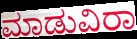
ಮಾಡುವಿರಾ